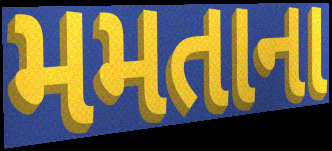
મમતાના